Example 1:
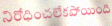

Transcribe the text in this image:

నిరోధించలేకపోయింది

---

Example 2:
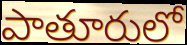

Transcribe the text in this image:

పాతూరులో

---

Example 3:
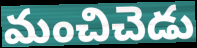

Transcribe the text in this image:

మంచిచెడు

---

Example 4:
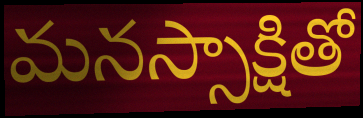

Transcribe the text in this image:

మనస్సాక్షితో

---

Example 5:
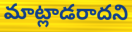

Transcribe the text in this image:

మాట్లాడరాదని